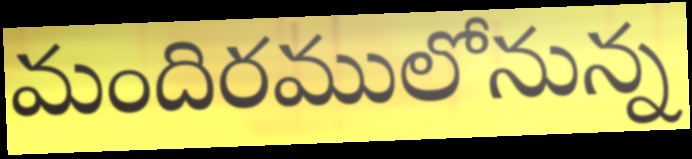
మందిరములోనున్న